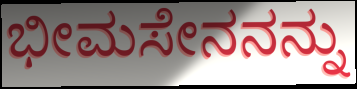
ಭೀಮಸೇನನನ್ನು